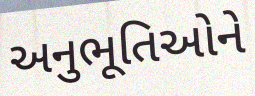
અનુભૂતિઓને